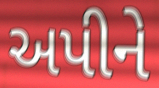
અપીને